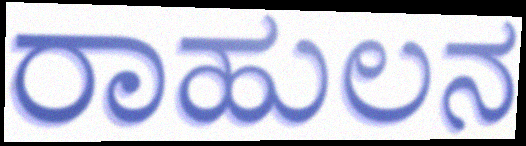
ರಾಹುಲನ